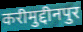
करीमुद्दीनपुर